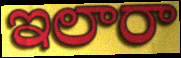
ఇలారా